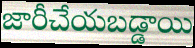
జారీచేయబడ్డాయి